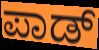
ಪಾಡ್